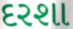
દરશા